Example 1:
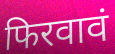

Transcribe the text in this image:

फिरवावं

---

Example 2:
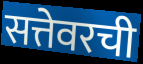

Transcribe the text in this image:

सत्तेवरची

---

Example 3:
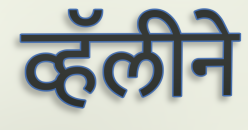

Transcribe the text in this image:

व्हॅलीने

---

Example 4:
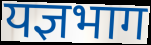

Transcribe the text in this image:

यज्ञभाग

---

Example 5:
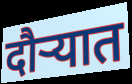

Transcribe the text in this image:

दौऱ्यात